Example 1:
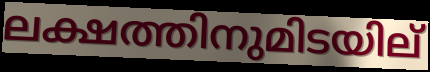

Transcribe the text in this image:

ലക്ഷത്തിനുമിടയില്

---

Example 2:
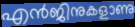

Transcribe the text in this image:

എൻജിനുകളാണു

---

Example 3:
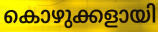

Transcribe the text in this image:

കൊഴുക്കളായി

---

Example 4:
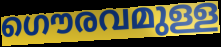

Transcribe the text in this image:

ഗൌരവമുള്ള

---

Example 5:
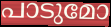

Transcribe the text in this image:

പാടുമോ